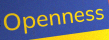
Openness